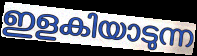
ഇളകിയാടുന്ന